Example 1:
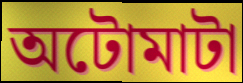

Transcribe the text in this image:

অটোমাটা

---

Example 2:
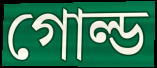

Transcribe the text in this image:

গোল্ড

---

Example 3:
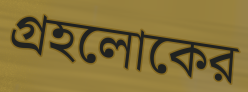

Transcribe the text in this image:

গ্রহলোকের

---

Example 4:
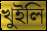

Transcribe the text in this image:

খুইলি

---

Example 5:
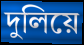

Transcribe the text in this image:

দুলিয়ে